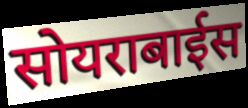
सोयराबाईस